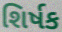
શિર્ષક